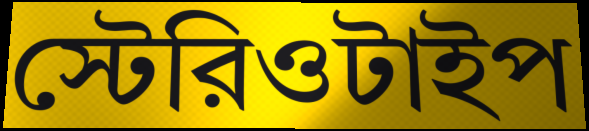
স্টেরিওটাইপ